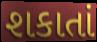
શકાતાં